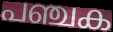
പഞ്ചക